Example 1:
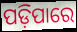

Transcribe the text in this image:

ପଡ଼ିପାରେ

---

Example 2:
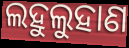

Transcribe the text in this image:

ଲହୁଲୁହାଣ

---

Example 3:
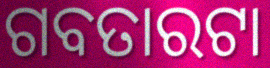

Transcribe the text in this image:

ଗବତାରଟା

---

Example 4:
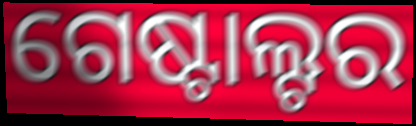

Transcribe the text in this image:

ଗେଷ୍ଟାଲ୍ଟର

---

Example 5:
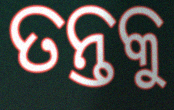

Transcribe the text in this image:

ତନ୍ତକୁ